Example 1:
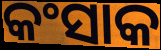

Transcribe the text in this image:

କଂସାକ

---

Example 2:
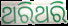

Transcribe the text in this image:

ଥରିଥରି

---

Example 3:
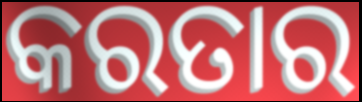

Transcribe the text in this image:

କରତାର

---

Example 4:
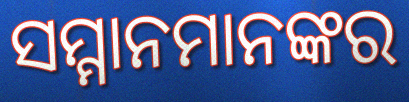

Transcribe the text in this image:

ସମ୍ମାନମାନଙ୍କର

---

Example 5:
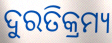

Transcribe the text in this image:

ଦୁରତିକ୍ରମ୍ୟ